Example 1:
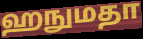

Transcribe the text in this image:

ஹநுமதா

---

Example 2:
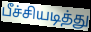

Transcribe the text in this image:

பீச்சியடித்து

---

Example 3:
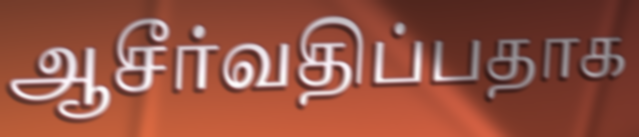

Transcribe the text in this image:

ஆசீர்வதிப்பதாக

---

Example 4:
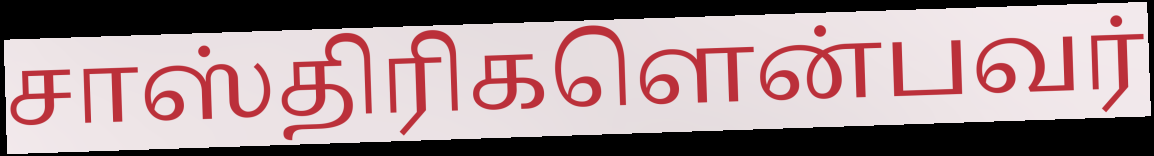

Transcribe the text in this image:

சாஸ்திரிகளென்பவர்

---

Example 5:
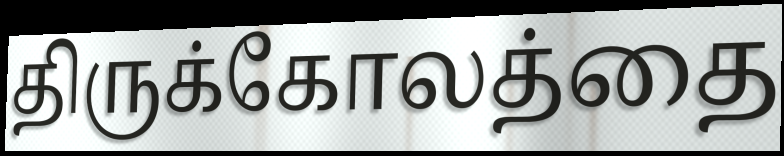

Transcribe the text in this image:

திருக்கோலத்தை